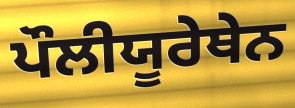
ਪੌਲੀਯੂਰੇਥੇਨ